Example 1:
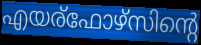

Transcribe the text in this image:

എയര്ഫോഴ്സിന്റെ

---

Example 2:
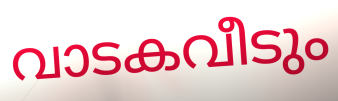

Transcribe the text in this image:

വാടകവീടും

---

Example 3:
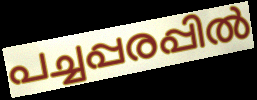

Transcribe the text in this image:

പച്ചപ്പരപ്പിൽ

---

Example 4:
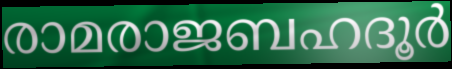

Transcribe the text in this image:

രാമരാജബഹദൂർ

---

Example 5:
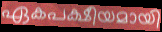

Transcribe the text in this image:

ഏകപക്ഷീയമായി